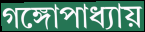
গঙ্গোপাধ্যায়